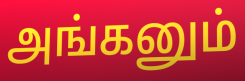
அங்கனும்